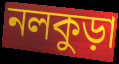
নলকুড়া